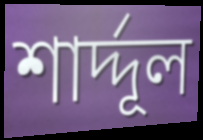
শার্দ্দূল